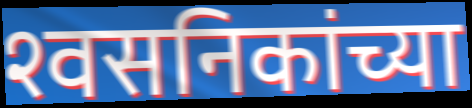
श्वसनिकांच्या